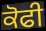
ਕੋਫੀ